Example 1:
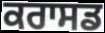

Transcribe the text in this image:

ਕਰਾਸਡ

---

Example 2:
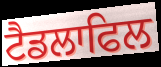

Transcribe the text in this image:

ਟੈਡਲਾਫਿਲ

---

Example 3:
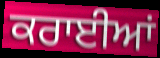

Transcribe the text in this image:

ਕਰਾਈਆਂ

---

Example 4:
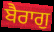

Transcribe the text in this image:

ਬੈਰਾਗੁ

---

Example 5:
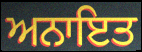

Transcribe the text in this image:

ਅਨਾਇਤ